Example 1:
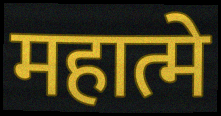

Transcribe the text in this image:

महात्मे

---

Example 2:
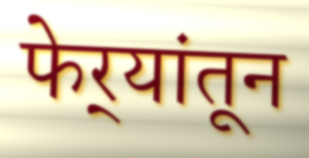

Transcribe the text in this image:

फेर्यांतून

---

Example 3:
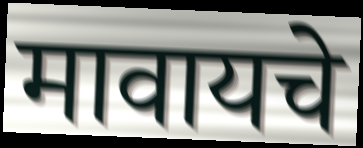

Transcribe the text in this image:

मावायचे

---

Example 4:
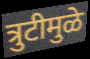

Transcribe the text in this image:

त्रुटीमुळे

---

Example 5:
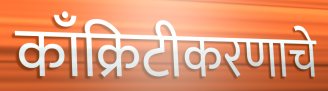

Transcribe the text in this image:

काँक्रिटीकरणाचे